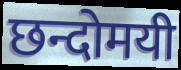
छन्दोमयी